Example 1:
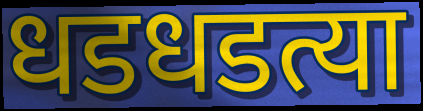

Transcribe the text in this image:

धडधडत्या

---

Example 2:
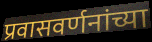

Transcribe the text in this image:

प्रवासवर्णनांच्या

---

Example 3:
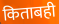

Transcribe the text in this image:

किताबही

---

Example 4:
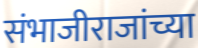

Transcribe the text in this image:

संभाजीराजांच्या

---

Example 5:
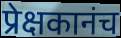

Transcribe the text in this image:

प्रेक्षकानंच